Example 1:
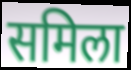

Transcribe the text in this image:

समिला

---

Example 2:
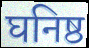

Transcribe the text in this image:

घनिष्ठ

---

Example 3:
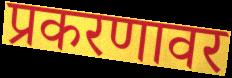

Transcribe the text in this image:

प्रकरणावर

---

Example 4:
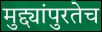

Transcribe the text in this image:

मुद्द्यांपुरतेच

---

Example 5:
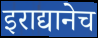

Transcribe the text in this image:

इराद्यानेच